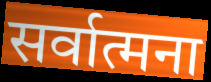
सर्वात्मना